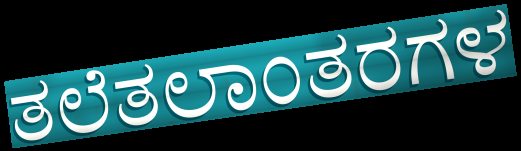
ತಲೆತಲಾಂತರಗಳ